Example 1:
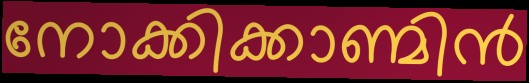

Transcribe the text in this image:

നോക്കിക്കാണ്മിൻ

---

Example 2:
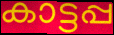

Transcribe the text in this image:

കാട്ടപ്പ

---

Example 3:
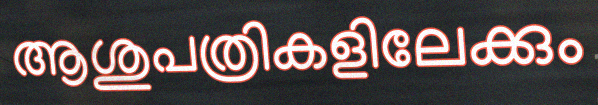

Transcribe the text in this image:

ആശുപത്രികളിലേക്കും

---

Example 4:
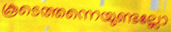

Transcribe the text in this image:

കൂടെത്തന്നെയുണ്ടല്ലോ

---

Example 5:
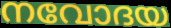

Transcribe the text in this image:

നവോദയ